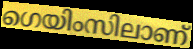
ഗെയിംസിലാണ്